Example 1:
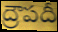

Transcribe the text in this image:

ద్రౌపదీ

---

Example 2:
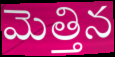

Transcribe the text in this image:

మెత్తిన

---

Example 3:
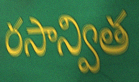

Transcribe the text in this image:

రసాన్విత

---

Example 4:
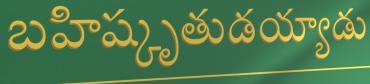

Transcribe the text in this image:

బహిష్కృతుడయ్యాడు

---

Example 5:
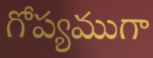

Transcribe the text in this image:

గోప్యముగా